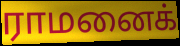
ராமனைக்